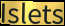
Islets